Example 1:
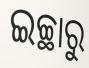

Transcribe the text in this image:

ଇଚ୍ଛାରୁ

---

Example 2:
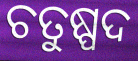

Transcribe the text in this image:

ଚତୁଷ୍ପଦ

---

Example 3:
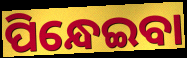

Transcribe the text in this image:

ପିନ୍ଧେଇବା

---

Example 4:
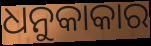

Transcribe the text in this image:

ଧନୁକାକାର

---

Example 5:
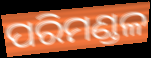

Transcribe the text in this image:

ପରିମଣ୍ଡଳ